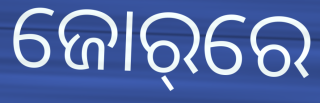
ଜୋର୍‌ରେ